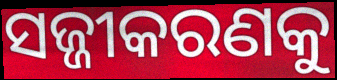
ସଜ୍ଜୀକରଣକୁ